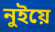
নুইয়ে